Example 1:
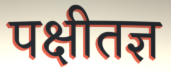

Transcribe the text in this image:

पक्षीतज्ञ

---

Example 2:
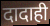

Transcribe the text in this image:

दादाही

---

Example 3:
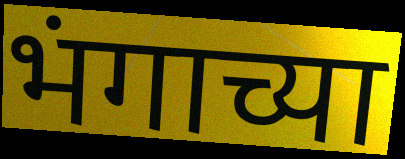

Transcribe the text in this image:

भंगाच्या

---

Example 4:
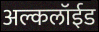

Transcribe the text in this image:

अल्कलॉईड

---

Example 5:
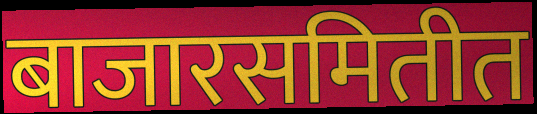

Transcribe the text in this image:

बाजारसमितीत